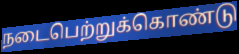
நடைபெற்றுக்கொண்டு